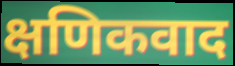
क्षणिकवाद